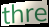
thre